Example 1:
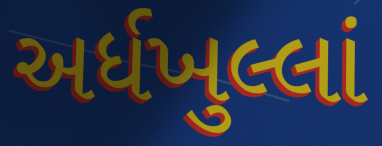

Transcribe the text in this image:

અર્ધખુલ્લાં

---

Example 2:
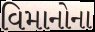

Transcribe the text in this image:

વિમાનોના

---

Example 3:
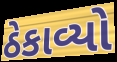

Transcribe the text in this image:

ઠેકાવ્યો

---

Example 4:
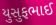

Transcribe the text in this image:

યુસુફભાઈ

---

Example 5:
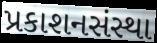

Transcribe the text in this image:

પ્રકાશનસંસ્થા